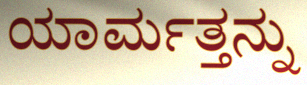
ಯಾರ್ಮತ್ತನ್ನು